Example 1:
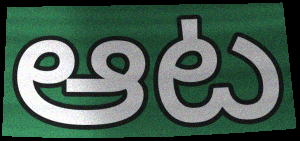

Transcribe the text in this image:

ఆట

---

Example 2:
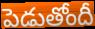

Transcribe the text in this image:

పెడుతోందీ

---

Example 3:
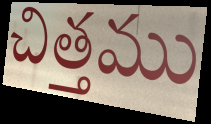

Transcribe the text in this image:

చిత్తము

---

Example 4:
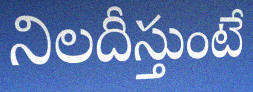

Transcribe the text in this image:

నిలదీస్తుంటే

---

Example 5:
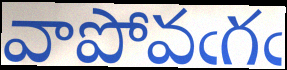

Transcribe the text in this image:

వాపోవఁగఁ